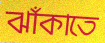
ঝাঁকাতে